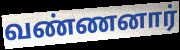
வண்ணனார்